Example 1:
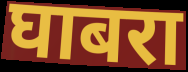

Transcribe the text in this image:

घाबरा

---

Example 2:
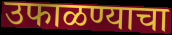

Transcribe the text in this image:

उफाळण्याचा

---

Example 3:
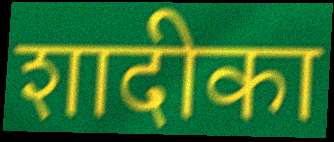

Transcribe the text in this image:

शादीका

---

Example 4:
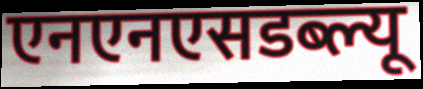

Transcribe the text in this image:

एनएनएसडब्ल्यू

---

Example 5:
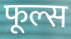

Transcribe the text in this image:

फूल्स